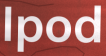
Ipod